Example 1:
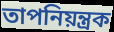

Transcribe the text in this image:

তাপনিয়ন্ত্রক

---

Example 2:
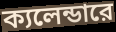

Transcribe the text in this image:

ক্যলেন্ডারে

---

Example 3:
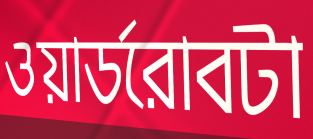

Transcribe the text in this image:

ওয়ার্ডরোবটা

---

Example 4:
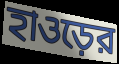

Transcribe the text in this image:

হাওড়ের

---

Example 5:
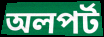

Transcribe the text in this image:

অলপর্ট